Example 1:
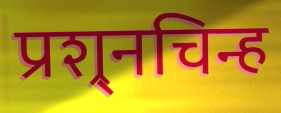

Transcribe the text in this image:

प्रश्र्नचिन्ह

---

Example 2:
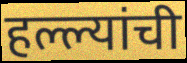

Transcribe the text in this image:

हल्ल्यांची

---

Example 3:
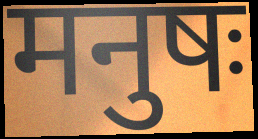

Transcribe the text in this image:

मनुषः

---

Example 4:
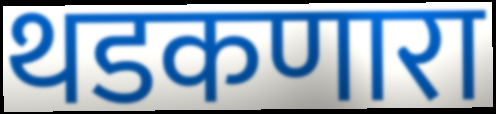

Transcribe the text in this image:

थडकणारा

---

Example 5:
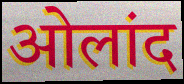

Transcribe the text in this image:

ओलांद